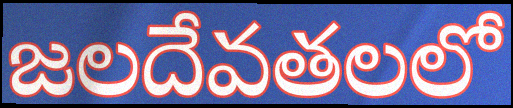
జలదేవతలలో